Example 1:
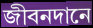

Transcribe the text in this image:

জীবনদানে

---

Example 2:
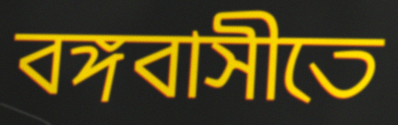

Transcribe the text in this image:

বঙ্গবাসীতে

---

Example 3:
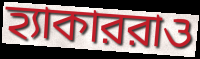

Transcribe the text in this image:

হ্যাকাররাও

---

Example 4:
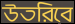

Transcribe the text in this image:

উতরিবে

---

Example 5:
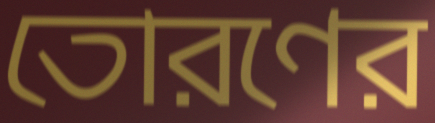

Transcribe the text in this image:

তোরণের